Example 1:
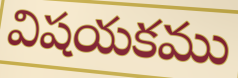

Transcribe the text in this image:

విషయకము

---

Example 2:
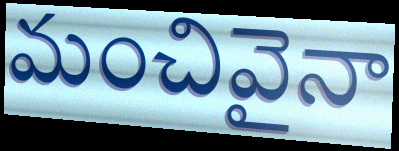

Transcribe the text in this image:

మంచివైనా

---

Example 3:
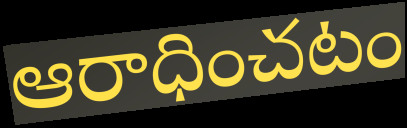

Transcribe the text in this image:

ఆరాధించటం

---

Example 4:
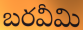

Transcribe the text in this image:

బరవీమి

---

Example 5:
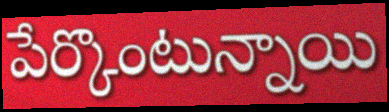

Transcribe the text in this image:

పేర్కొంటున్నాయి